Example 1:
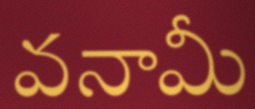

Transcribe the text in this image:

వనామీ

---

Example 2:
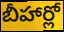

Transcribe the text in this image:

బీహార్లో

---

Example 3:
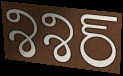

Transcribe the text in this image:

శిశిర్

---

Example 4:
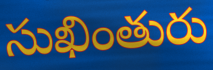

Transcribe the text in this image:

సుఖింతురు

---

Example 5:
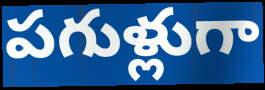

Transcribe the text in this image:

పగుళ్లుగా